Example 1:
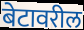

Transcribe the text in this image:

बेटावरील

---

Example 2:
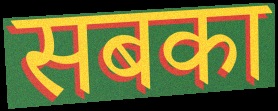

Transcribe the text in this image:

सबका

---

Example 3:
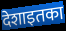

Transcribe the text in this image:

देशाइतका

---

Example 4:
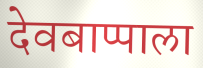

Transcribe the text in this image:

देवबाप्पाला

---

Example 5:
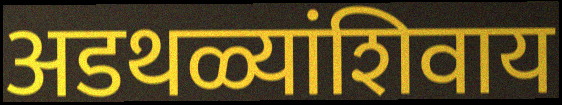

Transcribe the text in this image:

अडथळ्यांशिवाय